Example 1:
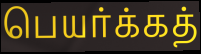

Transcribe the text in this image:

பெயர்க்கத்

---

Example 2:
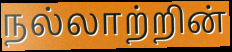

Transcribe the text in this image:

நல்லாற்றின்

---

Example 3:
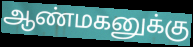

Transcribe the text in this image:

ஆண்மகனுக்கு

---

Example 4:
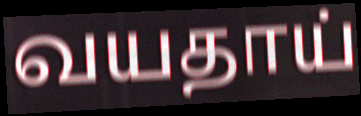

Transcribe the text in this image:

வயதாய்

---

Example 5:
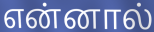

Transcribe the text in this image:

என்னால்